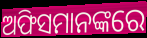
ଅଫିସମାନଙ୍କରେ